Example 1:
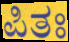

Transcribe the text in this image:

ಪಿತಃ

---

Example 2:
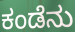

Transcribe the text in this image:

ಕಂಡೆನು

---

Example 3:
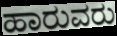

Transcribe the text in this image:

ಹಾರುವರು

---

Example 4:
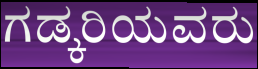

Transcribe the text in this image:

ಗಡ್ಕರಿಯವರು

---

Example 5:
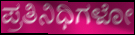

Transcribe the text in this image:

ಪ್ರತಿನಿಧಿಗಳೋ